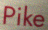
Pike